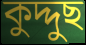
কুদ্দুছ